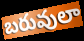
బరువులా